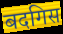
बदगिस